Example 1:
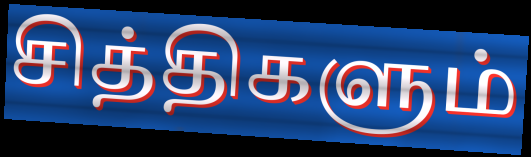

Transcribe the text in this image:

சித்திகளும்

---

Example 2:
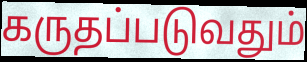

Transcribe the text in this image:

கருதப்படுவதும்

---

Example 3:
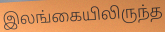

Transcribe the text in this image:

இலங்கையிலிருந்த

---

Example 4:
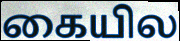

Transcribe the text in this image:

கையில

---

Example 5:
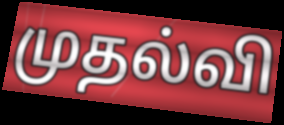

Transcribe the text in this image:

முதல்வி